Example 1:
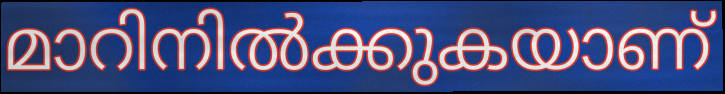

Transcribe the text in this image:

മാറിനിൽക്കുകയാണ്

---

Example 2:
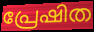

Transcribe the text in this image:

പ്രേഷിത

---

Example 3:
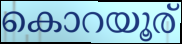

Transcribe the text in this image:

കൊറയൂര്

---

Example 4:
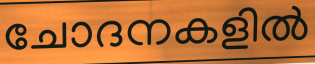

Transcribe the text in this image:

ചോദനകളിൽ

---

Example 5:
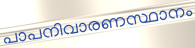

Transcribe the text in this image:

പാപനിവാരണസ്ഥാനം